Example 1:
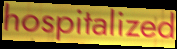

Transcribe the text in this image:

hospitalized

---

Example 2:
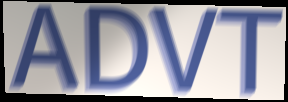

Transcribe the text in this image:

ADVT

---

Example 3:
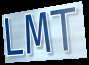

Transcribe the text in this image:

LMT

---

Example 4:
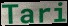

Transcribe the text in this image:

Tari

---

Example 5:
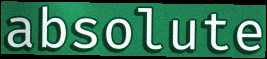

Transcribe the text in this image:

absolute